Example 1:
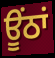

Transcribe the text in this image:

ਊਂਠਾਂ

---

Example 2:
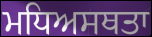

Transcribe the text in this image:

ਮਧਿਅਸਥਤਾ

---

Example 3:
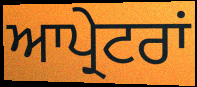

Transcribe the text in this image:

ਆਪ੍ਰੇਟਰਾਂ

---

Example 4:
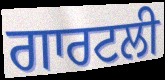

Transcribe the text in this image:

ਗਾਰਟਲੀ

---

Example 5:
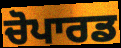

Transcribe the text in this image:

ਚੋਪਾਰਡ